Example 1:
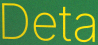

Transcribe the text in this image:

Deta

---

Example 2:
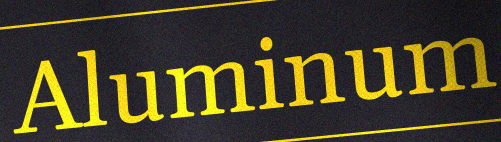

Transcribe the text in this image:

Aluminum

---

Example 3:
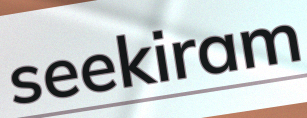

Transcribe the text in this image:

seekiram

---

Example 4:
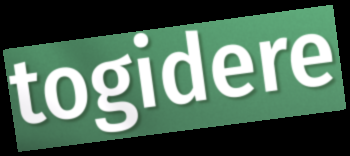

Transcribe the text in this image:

togidere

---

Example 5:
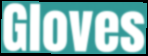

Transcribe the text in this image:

Gloves